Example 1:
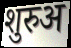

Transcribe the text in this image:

शुरुअ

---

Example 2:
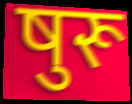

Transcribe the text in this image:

षुरू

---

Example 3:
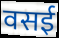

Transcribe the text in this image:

वसई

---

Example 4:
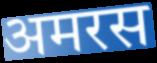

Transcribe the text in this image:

अमरस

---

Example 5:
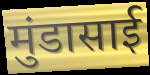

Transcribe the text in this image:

मुंडासाई